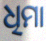
ଧିମା